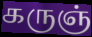
கருஞ்